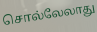
சொல்லேலாது